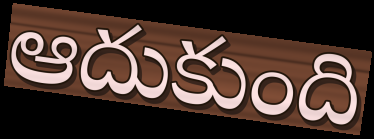
ఆదుకుంది